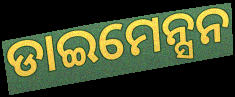
ଡାଇମେନ୍ସନ